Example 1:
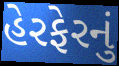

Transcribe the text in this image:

હેરફેરનું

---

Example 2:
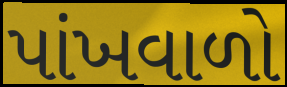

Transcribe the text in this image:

પાંખવાળો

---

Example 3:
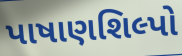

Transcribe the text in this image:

પાષાણશિલ્પો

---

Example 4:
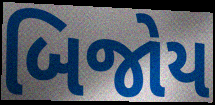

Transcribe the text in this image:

બિજોય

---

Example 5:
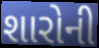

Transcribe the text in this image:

શારોની